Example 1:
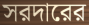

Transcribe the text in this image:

সরদারের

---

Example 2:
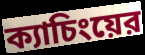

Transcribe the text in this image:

ক্যাচিংয়ের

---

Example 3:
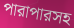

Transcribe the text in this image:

পারাপারসহ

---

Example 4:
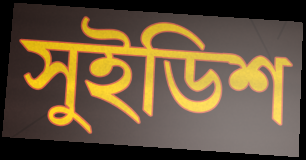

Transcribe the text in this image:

সুইডিশ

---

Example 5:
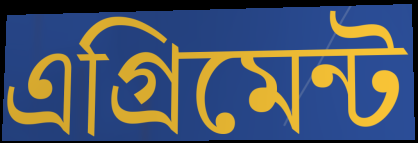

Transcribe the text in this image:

এগ্রিমেন্ট